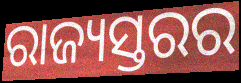
ରାଜ୍ୟସ୍ତରର